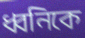
ধ্বনিকে